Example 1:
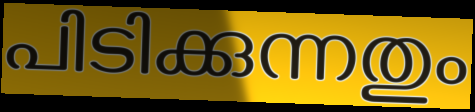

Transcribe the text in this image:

പിടിക്കുന്നതും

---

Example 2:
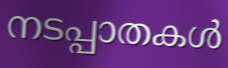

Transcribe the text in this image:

നടപ്പാതകൾ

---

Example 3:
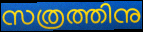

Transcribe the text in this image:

സത്രത്തിനു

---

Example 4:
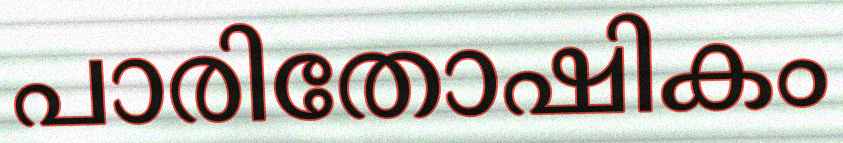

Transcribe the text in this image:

പാരിതോഷികം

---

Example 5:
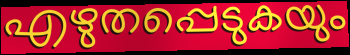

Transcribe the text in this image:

എഴുതപ്പെടുകയും